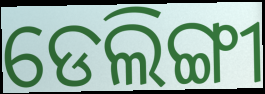
ଡେଲିଙ୍ଗୀ